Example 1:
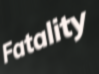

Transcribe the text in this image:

Fatality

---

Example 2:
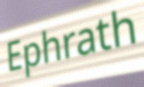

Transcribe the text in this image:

Ephrath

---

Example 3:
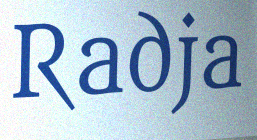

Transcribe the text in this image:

Radja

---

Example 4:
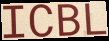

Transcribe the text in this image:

ICBL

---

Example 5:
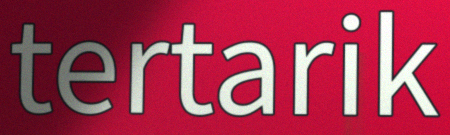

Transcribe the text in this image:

tertarik